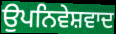
ਉਪਨਿਵੇਸ਼ਵਾਦ